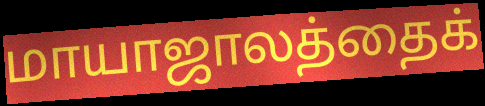
மாயாஜாலத்தைக்